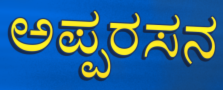
ಅಪ್ಪರಸನ